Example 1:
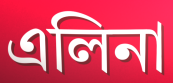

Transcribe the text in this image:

এলিনা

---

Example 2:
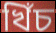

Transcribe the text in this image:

খিঁচ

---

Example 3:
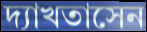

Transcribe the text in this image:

দ্যাখতাসেন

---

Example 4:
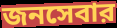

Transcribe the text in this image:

জনসেবার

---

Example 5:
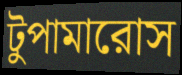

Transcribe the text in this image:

টুপামারোস